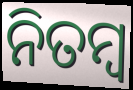
ନିତମ୍ବ